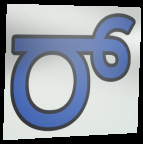
ರ್